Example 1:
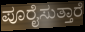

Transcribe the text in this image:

ಪೂರೈಸುತ್ತಾರೆ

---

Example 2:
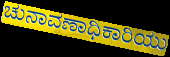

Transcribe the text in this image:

ಚುನಾವಣಾಧಿಕಾರಿಯು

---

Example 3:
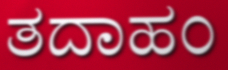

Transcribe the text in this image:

ತದಾಹಂ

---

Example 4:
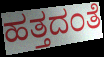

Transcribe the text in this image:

ಹತ್ತದಂತೆ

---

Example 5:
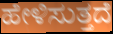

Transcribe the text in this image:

ಹೇಳಿಸುತ್ತದೆ